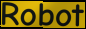
Robot